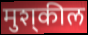
मुश्कील